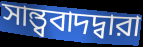
সান্ত্ববাদদ্বারা